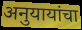
अनुयायांचा